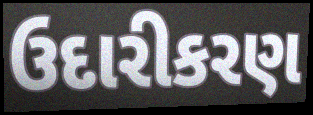
ઉદારીકરણ